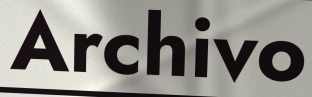
Archivo